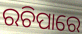
ରଚିପାରେ